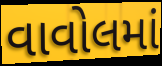
વાવોલમાં